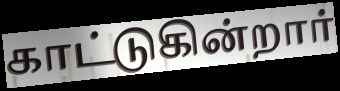
காட்டுகின்றார்